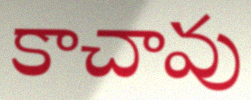
కాచావు